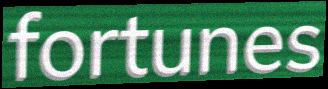
fortunes